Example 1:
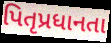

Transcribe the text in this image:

પિતૃપ્રધાનતા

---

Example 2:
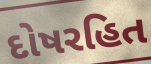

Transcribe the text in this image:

દોષરહિત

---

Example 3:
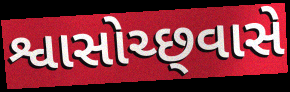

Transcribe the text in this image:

શ્વાસોચ્છ્‍વાસે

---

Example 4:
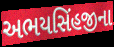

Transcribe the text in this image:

અભયસિંહજીના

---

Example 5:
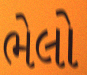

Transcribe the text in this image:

ભેલો